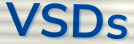
VSDs